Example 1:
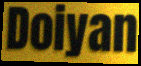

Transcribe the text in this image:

Doiyan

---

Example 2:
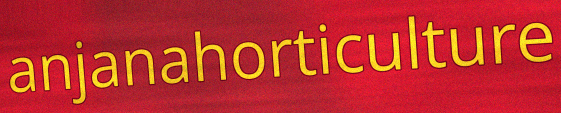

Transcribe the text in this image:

anjanahorticulture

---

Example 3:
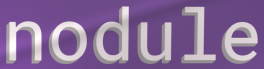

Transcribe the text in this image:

nodule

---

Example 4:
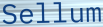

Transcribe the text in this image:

Sellum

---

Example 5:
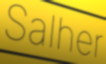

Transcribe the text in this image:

Salher